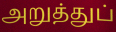
அறுத்துப்